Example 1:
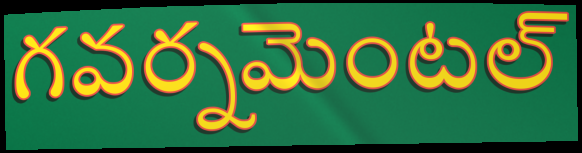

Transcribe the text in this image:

గవర్నమెంటల్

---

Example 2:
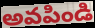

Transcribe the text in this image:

అవపిండి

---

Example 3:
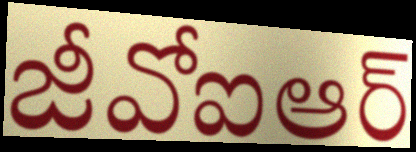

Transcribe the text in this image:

జీవోఐఆర్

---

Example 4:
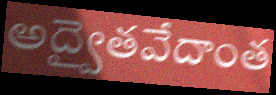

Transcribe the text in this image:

అద్వైతవేదాంత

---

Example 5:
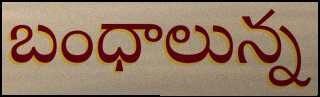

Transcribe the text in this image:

బంధాలున్న